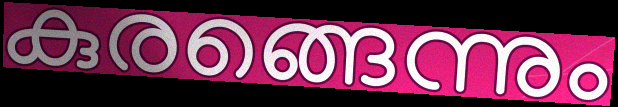
കുരങ്ങെന്നും